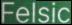
Felsic